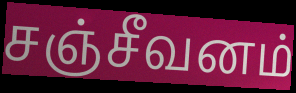
சஞ்சீவனம்